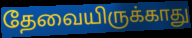
தேவையிருக்காது